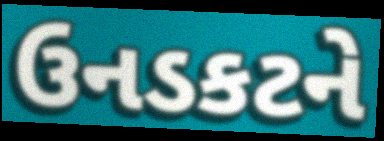
ઉનડકટને